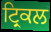
ਟ੍ਰਿਕਲ